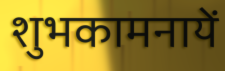
शुभकामनायें